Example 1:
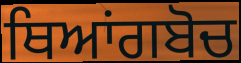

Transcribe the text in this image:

ਥਿਆਂਗਬੋਚ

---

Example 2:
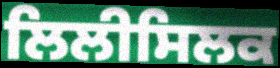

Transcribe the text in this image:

ਲਿਲੀਸਿਲਕ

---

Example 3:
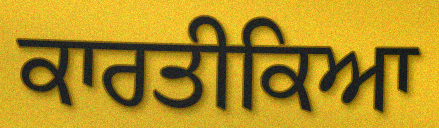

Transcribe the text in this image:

ਕਾਰਤੀਕਿਆ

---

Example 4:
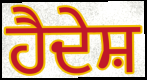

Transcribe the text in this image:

ਹੈਦੇਸ਼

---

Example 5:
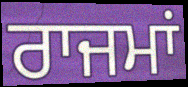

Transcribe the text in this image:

ਰਾਜਮਾਂ